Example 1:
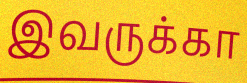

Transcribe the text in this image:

இவருக்கா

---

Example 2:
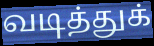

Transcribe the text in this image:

வடித்துக்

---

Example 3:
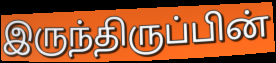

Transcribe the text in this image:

இருந்திருப்பின்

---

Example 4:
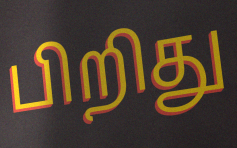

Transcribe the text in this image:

பிறிது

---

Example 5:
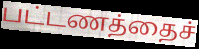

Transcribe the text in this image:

பட்டணத்தைச்